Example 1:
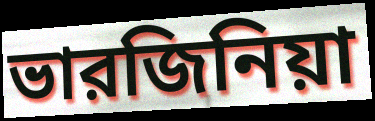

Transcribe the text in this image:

ভারজিনিয়া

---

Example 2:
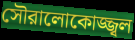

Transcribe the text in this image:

সৌরালোকোজ্জ্বল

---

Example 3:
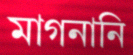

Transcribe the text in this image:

মাগনানি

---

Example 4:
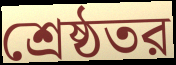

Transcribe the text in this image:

শ্রেষ্ঠতর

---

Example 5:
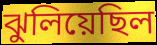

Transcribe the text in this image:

ঝুলিয়েছিল